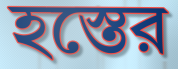
হস্তের